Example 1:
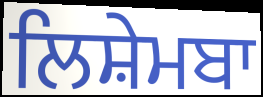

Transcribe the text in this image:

ਲਿਸ਼ੇਮਬਾ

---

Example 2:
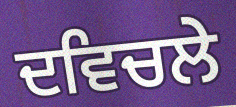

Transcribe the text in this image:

ਦਵਿਚਲੇ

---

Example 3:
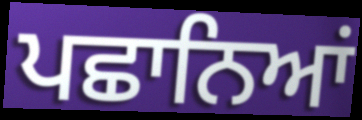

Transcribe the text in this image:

ਪਛਾਨਿਆਂ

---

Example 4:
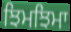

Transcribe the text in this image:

ਝਿਮਝਿਮਾ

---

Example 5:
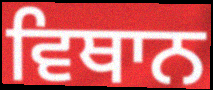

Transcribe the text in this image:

ਵਿਥਾਨ